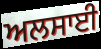
ਅਲਸਾਈ